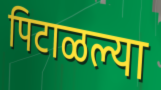
पिटाळल्या